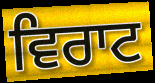
ਵਿਰਾਟ